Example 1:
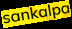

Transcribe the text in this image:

sankalpa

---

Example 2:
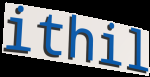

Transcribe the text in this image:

ithil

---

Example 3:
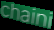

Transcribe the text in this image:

chaini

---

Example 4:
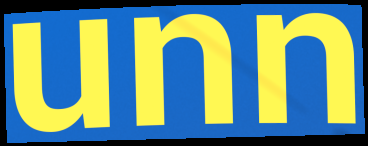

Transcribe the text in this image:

unn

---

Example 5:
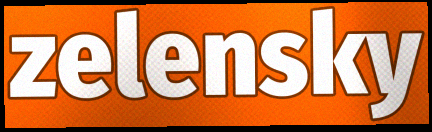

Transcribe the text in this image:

zelensky